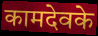
कामदेवके